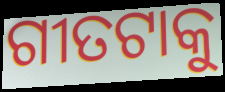
ଗୀତଟାକୁ